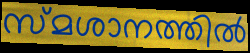
സ്മശാനത്തിൽ